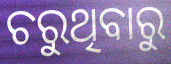
ଚରୁଥିବାରୁ